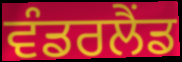
ਵੰਡਰਲੈਂਡ